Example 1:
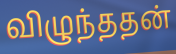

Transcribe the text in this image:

விழுந்ததன்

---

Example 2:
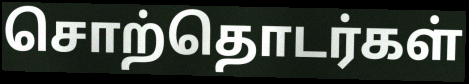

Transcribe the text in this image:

சொற்தொடர்கள்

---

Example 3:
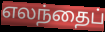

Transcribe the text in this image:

எலந்தைப்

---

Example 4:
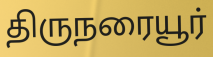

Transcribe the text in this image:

திருநரையூர்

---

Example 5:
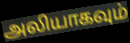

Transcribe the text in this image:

அலியாகவும்